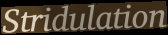
Stridulation